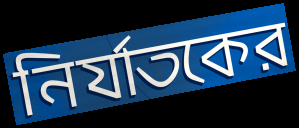
নির্যাতকের